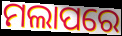
ମଲାପରେ